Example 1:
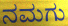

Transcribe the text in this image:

ನಮಗು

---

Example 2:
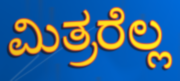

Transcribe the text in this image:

ಮಿತ್ರರೆಲ್ಲ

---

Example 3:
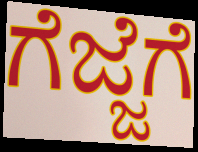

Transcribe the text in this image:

ಗೆಜ್ಜೆಗೆ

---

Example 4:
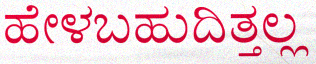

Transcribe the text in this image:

ಹೇಳಬಹುದಿತ್ತಲ್ಲ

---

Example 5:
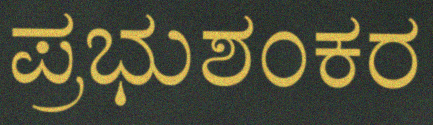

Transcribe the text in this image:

ಪ್ರಭುಶಂಕರ